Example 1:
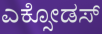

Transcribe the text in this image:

ಎಕ್ಸೋಡಸ್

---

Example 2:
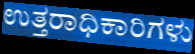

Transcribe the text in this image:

ಉತ್ತರಾಧಿಕಾರಿಗಳು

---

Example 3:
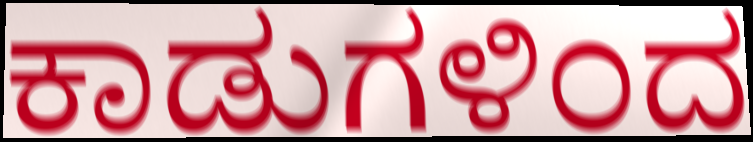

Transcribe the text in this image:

ಕಾಡುಗಳಿಂದ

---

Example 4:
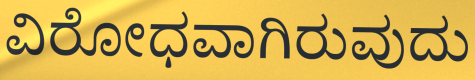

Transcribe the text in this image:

ವಿರೋಧವಾಗಿರುವುದು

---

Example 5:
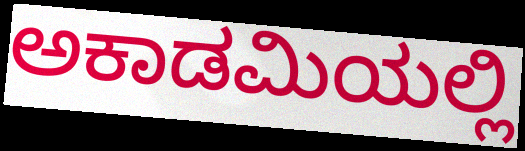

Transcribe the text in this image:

ಅಕಾಡಮಿಯಲ್ಲಿ